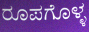
ರೂಪಗೊಳ್ಳ